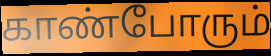
காண்போரும்